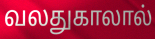
வலதுகாலால்